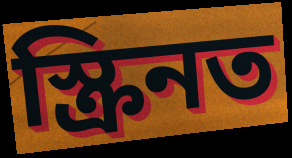
স্ক্ৰিনত